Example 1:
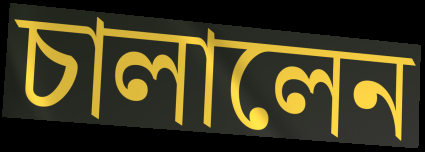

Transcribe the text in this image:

চালালেন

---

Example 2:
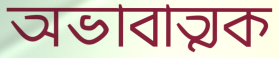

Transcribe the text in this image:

অভাবাত্মক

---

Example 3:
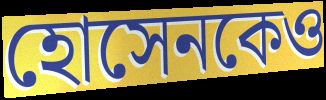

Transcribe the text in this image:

হোসেনকেও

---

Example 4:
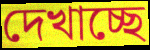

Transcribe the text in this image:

দেখাচ্ছে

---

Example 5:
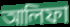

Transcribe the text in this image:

আলিফা